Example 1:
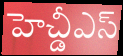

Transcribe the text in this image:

హెచ్డీఎస్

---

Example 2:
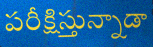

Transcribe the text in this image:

పరీక్షిస్తున్నాడా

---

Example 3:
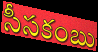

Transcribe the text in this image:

సీసకంబు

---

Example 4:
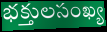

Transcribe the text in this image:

భక్తులసంఖ్య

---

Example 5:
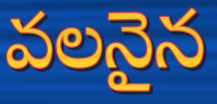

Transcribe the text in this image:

వలనైన